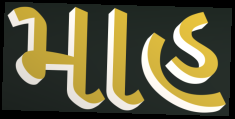
માહ